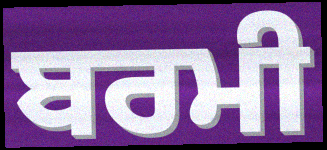
ਬਰਮੀ